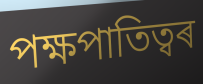
পক্ষপাতিত্বৰ